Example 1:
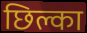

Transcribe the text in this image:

छिल्का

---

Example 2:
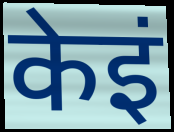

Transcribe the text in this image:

केइं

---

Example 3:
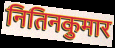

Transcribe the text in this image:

नितिनकुमार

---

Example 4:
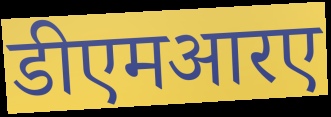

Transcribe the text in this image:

डीएमआरए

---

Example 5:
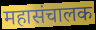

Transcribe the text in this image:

महासंचालक